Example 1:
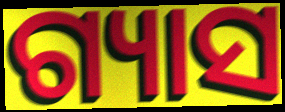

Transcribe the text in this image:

ଗ୍ୟାସ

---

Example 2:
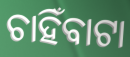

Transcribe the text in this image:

ଚାହିଁବାଟା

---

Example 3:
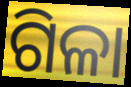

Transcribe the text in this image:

ଗିଳା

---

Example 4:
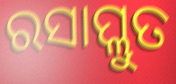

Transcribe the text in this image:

ରସାପ୍ଲୁତ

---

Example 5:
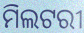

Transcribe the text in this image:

ମିଲଟରୀ